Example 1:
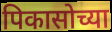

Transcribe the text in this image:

पिकासोच्या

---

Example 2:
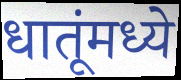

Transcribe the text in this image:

धातूंमध्ये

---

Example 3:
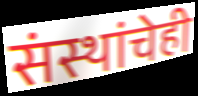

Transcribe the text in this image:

संस्थांचेही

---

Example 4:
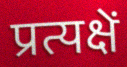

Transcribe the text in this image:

प्रत्यक्षें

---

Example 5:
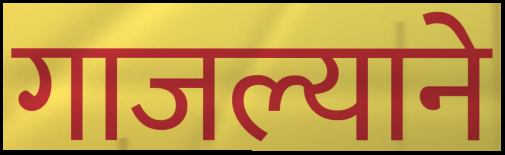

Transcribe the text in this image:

गाजल्याने